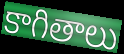
కాగితాలు